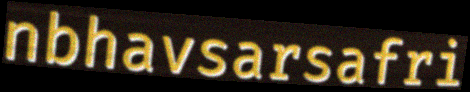
nbhavsarsafri